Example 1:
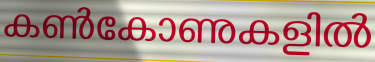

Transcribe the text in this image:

കൺകോണുകളിൽ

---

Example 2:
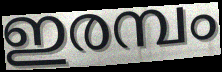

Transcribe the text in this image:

ഇരമ്പം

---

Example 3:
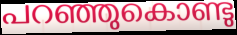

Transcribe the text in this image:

പറഞ്ഞുകൊണ്ടു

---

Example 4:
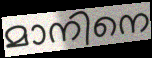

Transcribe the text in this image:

മാനിനെ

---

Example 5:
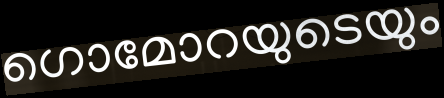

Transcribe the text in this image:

ഗൊമോറയുടെയും